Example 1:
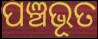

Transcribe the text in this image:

ପଞ୍ଚଭୂତ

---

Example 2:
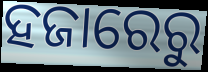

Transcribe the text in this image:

ହଜାରେରୁ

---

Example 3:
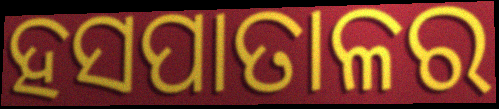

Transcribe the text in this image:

ହସପାତାଳର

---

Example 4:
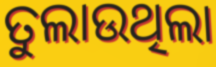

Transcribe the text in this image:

ତୁଲାଉଥିଲା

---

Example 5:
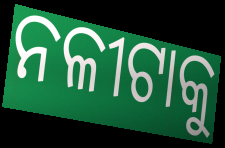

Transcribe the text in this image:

ନଳୀଟାକୁ